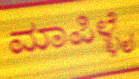
ಮಾಪಿಳ್ಳೈ